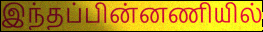
இந்தப்பின்னணியில்